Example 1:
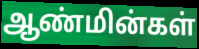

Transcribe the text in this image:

ஆண்மின்கள்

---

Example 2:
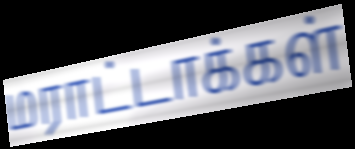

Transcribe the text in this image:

மராட்டாக்கள்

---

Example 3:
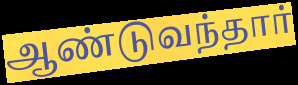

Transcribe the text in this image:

ஆண்டுவந்தார்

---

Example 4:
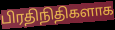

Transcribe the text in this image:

பிரதிநிதிகளாக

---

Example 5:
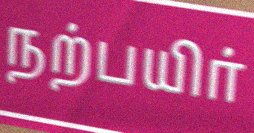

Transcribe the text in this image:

நற்பயிர்